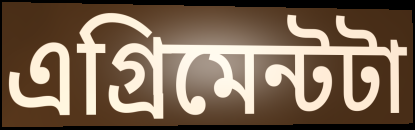
এগ্রিমেন্টটা